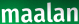
maalan